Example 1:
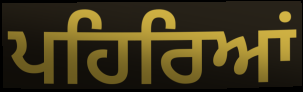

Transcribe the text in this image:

ਪਹਿਰਿਆਂ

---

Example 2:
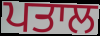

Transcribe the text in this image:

ਪਤਾਲ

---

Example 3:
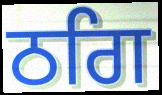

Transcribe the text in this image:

ਠਗਿ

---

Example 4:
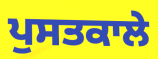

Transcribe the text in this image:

ਪੁਸਤਕਾਲੇ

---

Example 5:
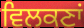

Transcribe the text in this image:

ਵਿਲਕਣਾਂ